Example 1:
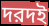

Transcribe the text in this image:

দরদই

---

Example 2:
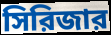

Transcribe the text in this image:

সিরিজার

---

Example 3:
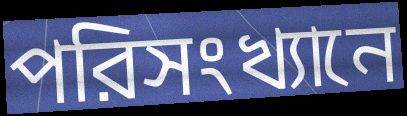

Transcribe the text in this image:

পরিসংখ্যানে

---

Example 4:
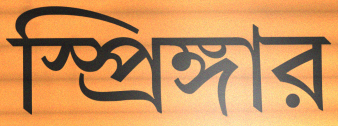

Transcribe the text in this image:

স্প্রিঙ্গার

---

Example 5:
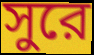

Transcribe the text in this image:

সুরে